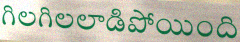
గిలగిలలాడిపోయింది